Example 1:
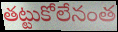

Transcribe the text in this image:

తట్టుకోలేనంత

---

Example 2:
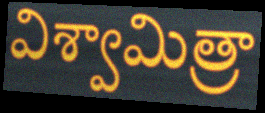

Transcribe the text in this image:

విశ్వామిత్రా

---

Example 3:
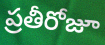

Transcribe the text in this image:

ప్రతీరోజూ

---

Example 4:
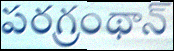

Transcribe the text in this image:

పరగ్రంథాన్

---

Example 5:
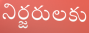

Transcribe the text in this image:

నిర్జరులకు